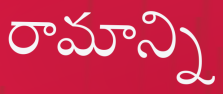
రామాన్ని